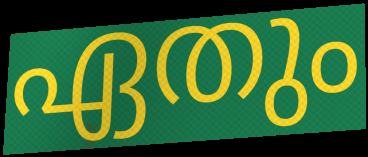
ഏതും